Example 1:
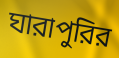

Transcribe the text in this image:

ঘারাপুরির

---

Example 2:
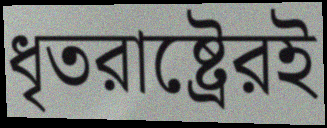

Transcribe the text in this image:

ধৃতরাষ্ট্রেরই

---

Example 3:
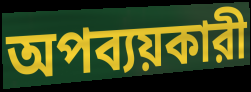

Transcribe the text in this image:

অপব্যয়কারী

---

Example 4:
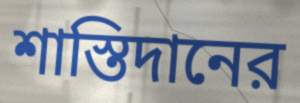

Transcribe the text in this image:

শাস্তিদানের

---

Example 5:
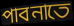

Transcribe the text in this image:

পাবনাতে